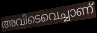
അവിടെവെച്ചാണ്